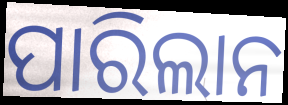
ପାରିଲାନ